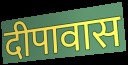
दीपावास